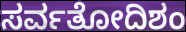
ಸರ್ವತೋದಿಶಂ